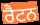
ਰੈਟਨ